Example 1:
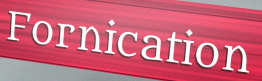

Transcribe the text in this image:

Fornication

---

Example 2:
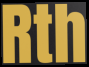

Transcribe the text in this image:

Rth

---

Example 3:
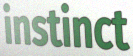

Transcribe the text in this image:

instinct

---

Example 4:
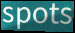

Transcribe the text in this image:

spots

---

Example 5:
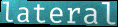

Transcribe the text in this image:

lateral